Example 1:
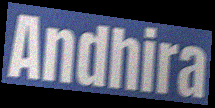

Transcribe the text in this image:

Andhira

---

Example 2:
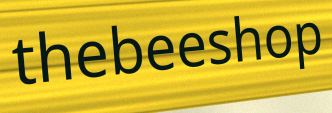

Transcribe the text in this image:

thebeeshop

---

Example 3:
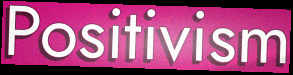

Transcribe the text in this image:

Positivism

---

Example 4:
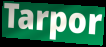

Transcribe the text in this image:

Tarpor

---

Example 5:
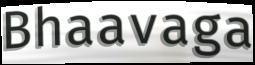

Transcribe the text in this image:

Bhaavaga